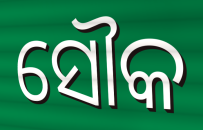
ସୌକ